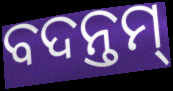
ବଦନ୍ତମ୍